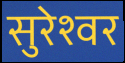
सुरेश्वर